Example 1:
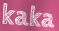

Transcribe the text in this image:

kaka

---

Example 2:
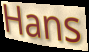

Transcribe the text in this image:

Hans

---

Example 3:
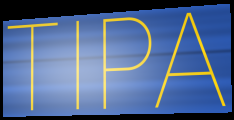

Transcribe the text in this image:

TIPA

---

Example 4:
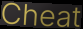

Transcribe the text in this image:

Cheat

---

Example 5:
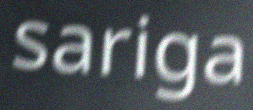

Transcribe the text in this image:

sariga